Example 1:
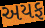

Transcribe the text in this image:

અયફ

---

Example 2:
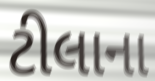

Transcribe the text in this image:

ટીલાના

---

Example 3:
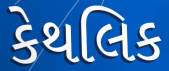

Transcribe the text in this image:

કેથલિક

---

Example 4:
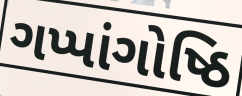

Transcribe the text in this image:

ગપ્પાંગોષ્ઠિ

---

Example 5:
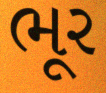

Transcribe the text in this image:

ભૂર